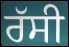
ਰੱਸੀ